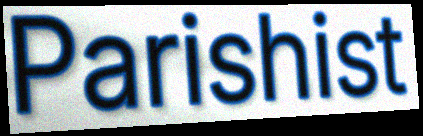
Parishist